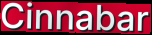
Cinnabar